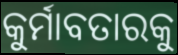
କୁର୍ମାବତାରକୁ